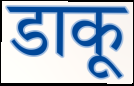
डाकू